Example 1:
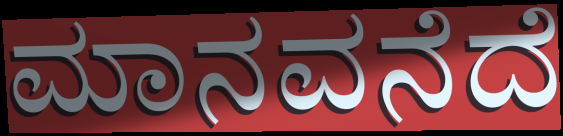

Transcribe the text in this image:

ಮಾನವನೆದೆ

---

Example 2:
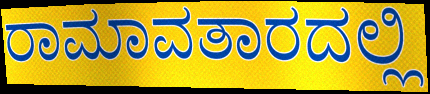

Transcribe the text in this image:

ರಾಮಾವತಾರದಲ್ಲಿ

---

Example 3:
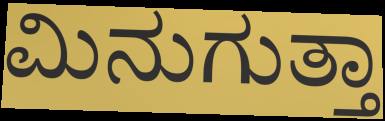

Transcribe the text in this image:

ಮಿನುಗುತ್ತಾ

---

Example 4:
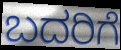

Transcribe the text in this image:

ಬದರಿಗೆ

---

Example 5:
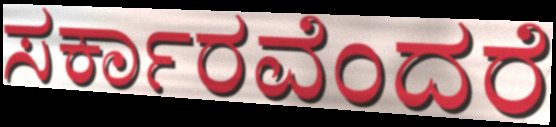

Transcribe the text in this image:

ಸರ್ಕಾರವೆಂದರೆ